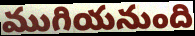
ముగియనుంది